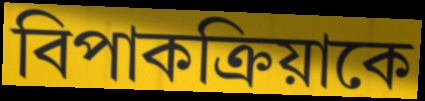
বিপাকক্রিয়াকে